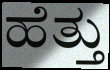
ಹೆತ್ತು